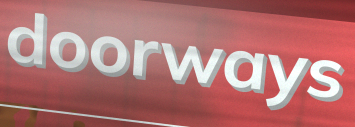
doorways